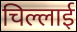
चिल्लाई